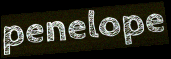
penelope